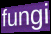
fungi